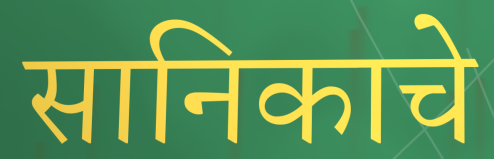
सानिकाचे